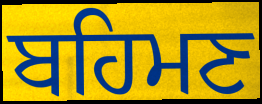
ਬਹਿਮਣ